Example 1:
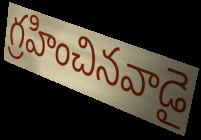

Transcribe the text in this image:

గ్రహించినవాడై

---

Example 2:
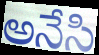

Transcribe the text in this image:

అనేసి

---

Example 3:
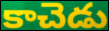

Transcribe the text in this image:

కాచెడు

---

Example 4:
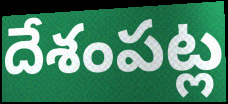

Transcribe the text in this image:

దేశంపట్ల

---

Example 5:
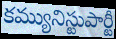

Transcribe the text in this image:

కమ్యునిస్టుపార్టీ